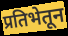
प्रतिभेतून